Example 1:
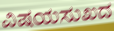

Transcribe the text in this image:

ವಿಷಯಸುಖದ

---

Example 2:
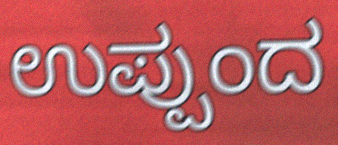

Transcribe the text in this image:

ಉಪ್ಪುಂದ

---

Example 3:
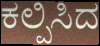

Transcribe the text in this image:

ಕಲ್ಪಿಸಿದ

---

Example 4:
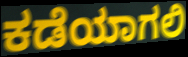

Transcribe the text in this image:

ಕಡೆಯಾಗಲಿ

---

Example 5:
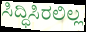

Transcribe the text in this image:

ಸಿದ್ಧಿಸಿರಲಿಲ್ಲ